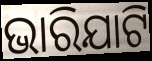
ଭାରିଯାଟି